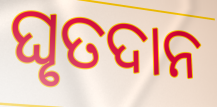
ଘୃତଦାନ